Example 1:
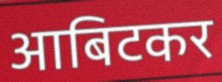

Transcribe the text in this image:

आबिटकर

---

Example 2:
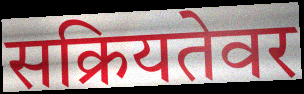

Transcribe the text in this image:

सक्रियतेवर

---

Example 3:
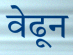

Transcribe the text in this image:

वेढून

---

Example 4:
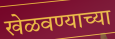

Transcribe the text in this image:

खेळवण्याच्या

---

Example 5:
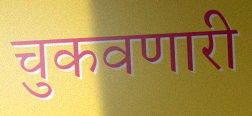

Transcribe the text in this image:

चुकवणारी